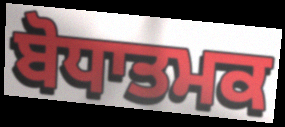
ਬੋਧਾਤਮਕ